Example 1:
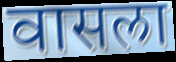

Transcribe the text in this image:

वासला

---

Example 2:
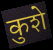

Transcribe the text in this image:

कुशे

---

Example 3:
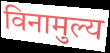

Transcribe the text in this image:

विनामुल्य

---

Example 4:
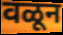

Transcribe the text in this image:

वळून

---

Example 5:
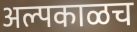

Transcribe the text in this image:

अल्पकाळच